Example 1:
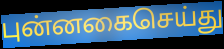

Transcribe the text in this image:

புன்னகைசெய்து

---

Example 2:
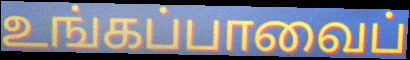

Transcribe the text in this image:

உங்கப்பாவைப்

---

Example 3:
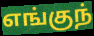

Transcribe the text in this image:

எங்குந்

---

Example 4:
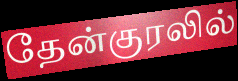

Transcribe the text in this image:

தேன்குரலில்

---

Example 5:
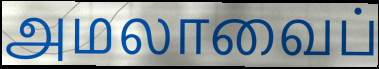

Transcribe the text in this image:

அமலாவைப்